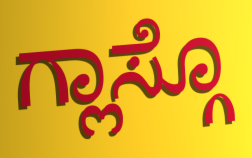
ಗ್ಲಾಸ್ಗೊ